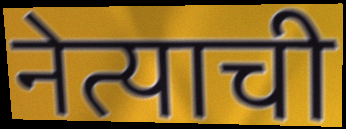
नेत्याची